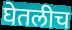
घेतलीच